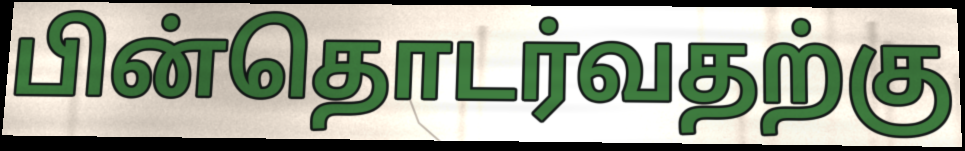
பின்தொடர்வதற்கு